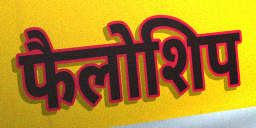
फैलोशिप